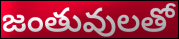
జంతువులతో